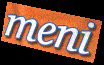
meni